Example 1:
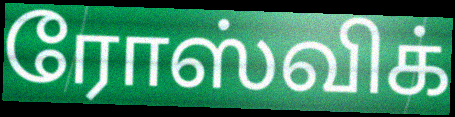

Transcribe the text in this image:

ரோஸ்விக்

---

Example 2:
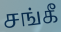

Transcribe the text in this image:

சங்கீ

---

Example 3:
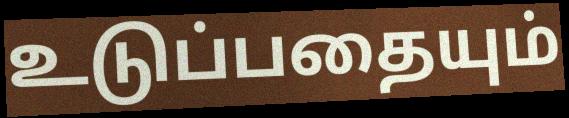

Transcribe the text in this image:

உடுப்பதையும்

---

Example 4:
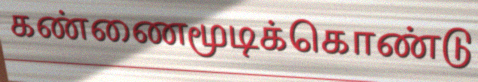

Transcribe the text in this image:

கண்ணைமூடிக்கொண்டு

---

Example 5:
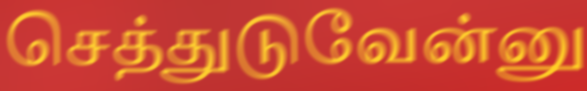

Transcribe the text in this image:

செத்துடுவேன்னு